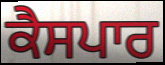
ਕੈਸਪਾਰ